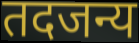
तदजन्य